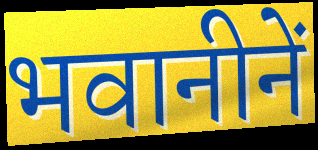
भवानीनें